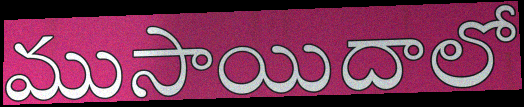
ముసాయిదాలో